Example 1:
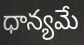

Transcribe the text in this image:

ధాన్యమే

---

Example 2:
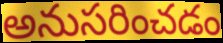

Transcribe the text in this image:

అనుసరించడం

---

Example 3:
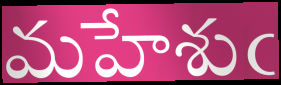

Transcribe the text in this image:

మహేశుఁ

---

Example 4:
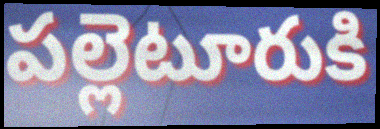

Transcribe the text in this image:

పల్లెటూరుకి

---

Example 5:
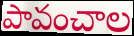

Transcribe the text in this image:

పావంచాల